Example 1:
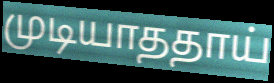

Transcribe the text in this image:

முடியாததாய்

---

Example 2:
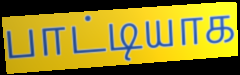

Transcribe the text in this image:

பாட்டியாக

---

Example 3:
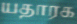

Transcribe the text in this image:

யதாரக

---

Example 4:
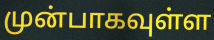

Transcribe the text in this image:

முன்பாகவுள்ள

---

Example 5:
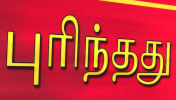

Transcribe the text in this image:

புரிந்தது